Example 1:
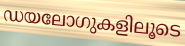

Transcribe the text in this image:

ഡയലോഗുകളിലൂടെ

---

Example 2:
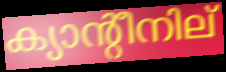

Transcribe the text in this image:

ക്യാന്റീനില്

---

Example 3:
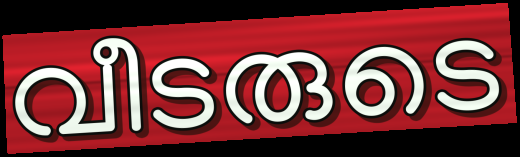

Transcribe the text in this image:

വീടരുടെ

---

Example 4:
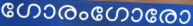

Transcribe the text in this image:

ഗോരംഗോരോ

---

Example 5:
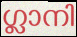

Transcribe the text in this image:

ഗ്ലാനി